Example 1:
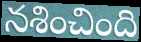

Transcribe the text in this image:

నశించింది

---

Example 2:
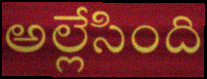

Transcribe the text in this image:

అల్లేసింది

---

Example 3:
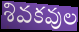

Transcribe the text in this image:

శివకవుల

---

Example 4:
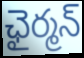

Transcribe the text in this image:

ఛైర్మన్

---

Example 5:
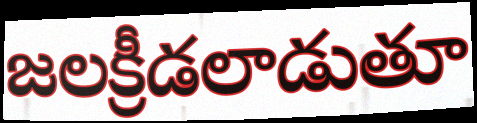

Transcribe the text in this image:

జలక్రీడలాడుతూ